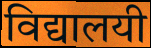
विद्यालयी